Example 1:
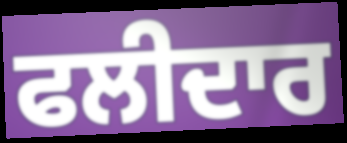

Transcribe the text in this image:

ਫਲੀਦਾਰ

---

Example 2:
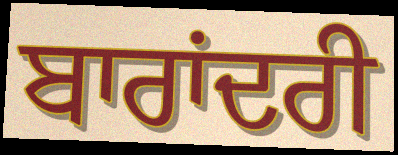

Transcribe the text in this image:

ਬਾਰਾਂਦਰੀ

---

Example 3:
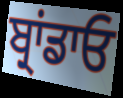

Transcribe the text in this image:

ਬ੍ਰਾਂਡਾਓ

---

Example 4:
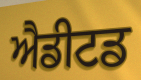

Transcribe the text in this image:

ਐਡੀਟਡ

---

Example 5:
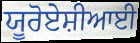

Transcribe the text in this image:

ਯੂਰੋਏਸ਼ੀਆਈ